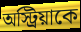
অস্ট্রিয়াকে